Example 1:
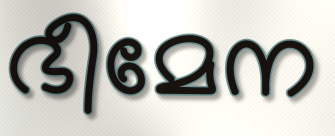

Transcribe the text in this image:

ഭീമേന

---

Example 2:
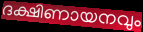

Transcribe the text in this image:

ദക്ഷിണായനവും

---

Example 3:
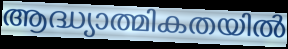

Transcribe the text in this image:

ആദ്ധ്യാത്മികതയിൽ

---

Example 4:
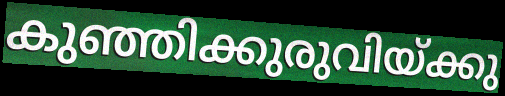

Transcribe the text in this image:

കുഞ്ഞിക്കുരുവിയ്ക്കു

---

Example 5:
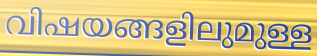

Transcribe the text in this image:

വിഷയങ്ങളിലുമുള്ള